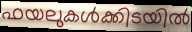
ഫയലുകൾക്കിടയിൽ